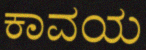
ಕಾವಯ